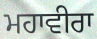
ਮਹਾਵੀਰਾ